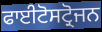
ਫਾਈਟੋਸਟ੍ਰੋਜਨ